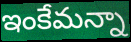
ఇంకేమన్నా